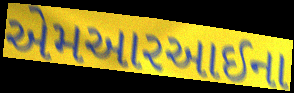
એમઆરઆઈના